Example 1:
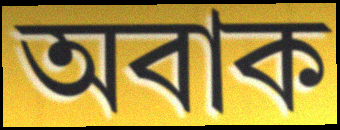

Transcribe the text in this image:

অবাক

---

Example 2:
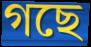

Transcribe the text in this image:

গছে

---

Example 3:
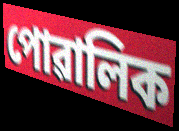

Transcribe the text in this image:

পোৱালিক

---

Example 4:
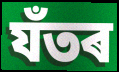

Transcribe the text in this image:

যঁতৰ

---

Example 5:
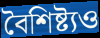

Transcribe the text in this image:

বৈশিষ্ট্যও